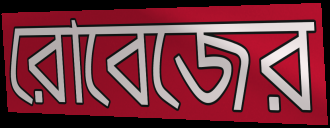
রোবেজের